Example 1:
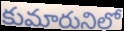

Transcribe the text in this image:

కుమారునిలో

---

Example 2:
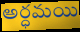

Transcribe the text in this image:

అర్ధమయి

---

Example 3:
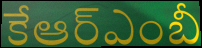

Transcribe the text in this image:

కేఆర్ఎంబీ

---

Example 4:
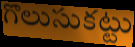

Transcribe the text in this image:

గొలుసుకట్టు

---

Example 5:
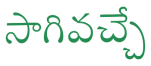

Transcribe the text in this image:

సాగివచ్చే